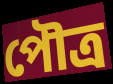
পৌত্র